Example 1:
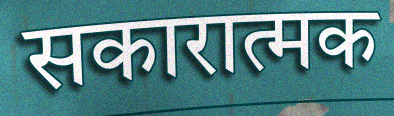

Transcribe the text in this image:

सकारात्‍मक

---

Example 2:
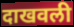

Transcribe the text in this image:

दाखवली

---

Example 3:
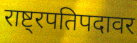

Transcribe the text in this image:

राष्ट्रपतिपदावर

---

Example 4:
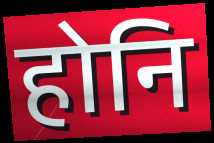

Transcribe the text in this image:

होनि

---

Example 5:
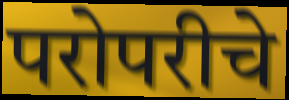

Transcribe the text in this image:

परोपरीचे